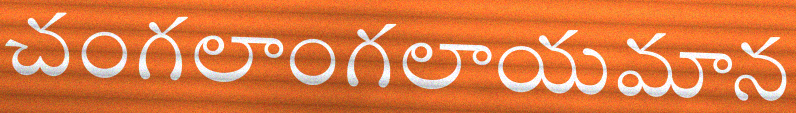
చంగలాంగలాయమాన